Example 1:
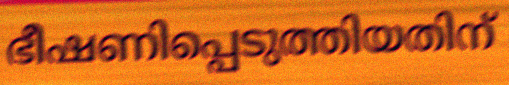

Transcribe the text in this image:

ഭീഷണിപ്പെടുത്തിയതിന്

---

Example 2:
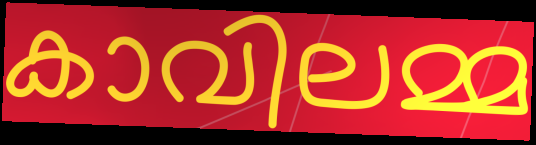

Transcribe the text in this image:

കാവിലമ്മ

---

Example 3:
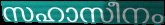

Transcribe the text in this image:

സഹാസീനം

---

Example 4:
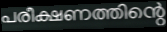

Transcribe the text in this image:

പരീക്ഷണത്തിന്റെ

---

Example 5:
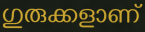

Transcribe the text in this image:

ഗുരുക്കളാണ്